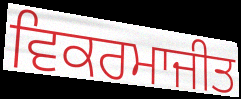
ਵਿਕਰਮਾਜੀਤ